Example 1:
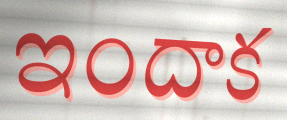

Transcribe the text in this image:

ఇందాక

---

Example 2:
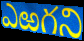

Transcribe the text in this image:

ఎఱగని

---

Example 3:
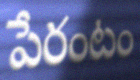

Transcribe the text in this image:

పేరంటం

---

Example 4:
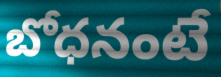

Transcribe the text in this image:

బోధనంటే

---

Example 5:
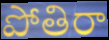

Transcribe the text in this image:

పోతిరా